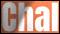
Chal